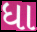
ધા